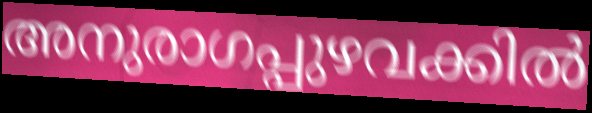
അനുരാഗപ്പുഴവക്കിൽ